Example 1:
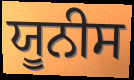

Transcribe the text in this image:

ਯੂਨੀਸ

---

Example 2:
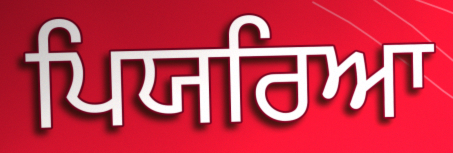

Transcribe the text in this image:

ਪਿਯਰਿਆ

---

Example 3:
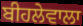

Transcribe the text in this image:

ਬੀਹਲੇਵਾਲਾ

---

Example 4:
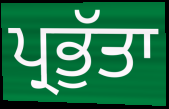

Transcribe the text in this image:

ਪ੍ਰਭੁੱਤਾ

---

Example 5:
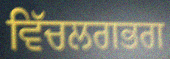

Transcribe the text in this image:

ਵਿੱਚਲਗਭਗ